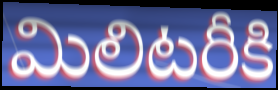
మిలిటరీకి